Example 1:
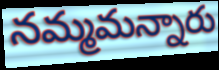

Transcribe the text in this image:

నమ్మమన్నారు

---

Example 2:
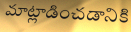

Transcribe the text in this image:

మాట్లాడించడానికి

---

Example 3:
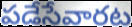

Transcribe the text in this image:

పడేసేవారట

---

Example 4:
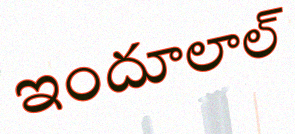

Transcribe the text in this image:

ఇందూలాల్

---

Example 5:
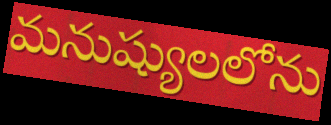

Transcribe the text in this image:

మనుష్యులలోను